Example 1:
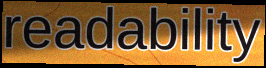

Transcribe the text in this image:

readability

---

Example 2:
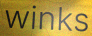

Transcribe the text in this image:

winks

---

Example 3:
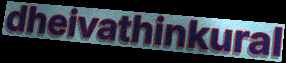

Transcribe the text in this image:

dheivathinkural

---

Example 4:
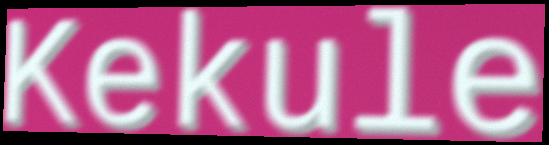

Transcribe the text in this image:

Kekule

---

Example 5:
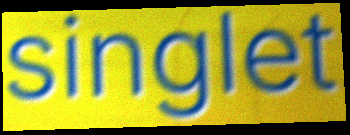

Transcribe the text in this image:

singlet